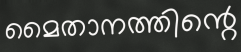
മൈതാനത്തിന്റെ